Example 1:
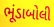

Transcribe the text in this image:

ભૂંડાબોલી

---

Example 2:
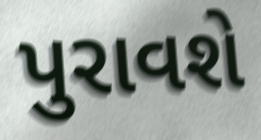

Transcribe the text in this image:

પુરાવશે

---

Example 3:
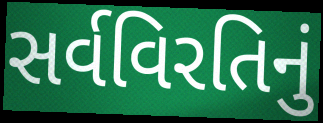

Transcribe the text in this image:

સર્વવિરતિનું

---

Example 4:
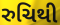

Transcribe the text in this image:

રુચિથી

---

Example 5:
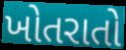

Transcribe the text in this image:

ખોતરાતો